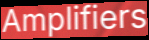
Amplifiers